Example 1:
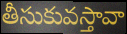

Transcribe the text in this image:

తీసుకువస్తావా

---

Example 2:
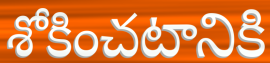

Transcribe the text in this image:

శోకించటానికి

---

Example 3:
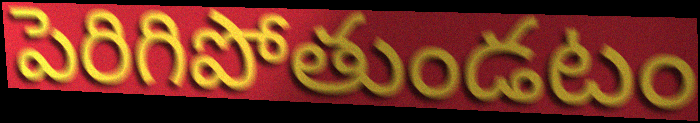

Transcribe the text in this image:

పెరిగిపోతుండటం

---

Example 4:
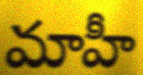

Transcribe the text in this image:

మాహీ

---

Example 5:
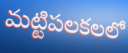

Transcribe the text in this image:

మట్టిపలకలలో